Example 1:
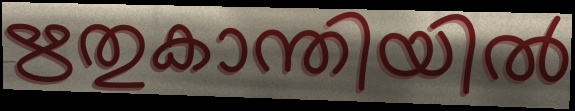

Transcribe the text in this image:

ഋതുകാന്തിയിൽ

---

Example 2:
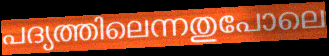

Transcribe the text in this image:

പദ്യത്തിലെന്നതുപോലെ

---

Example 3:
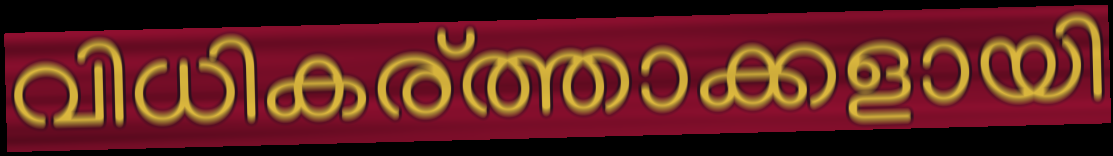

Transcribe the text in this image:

വിധികര്ത്താക്കളായി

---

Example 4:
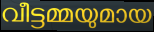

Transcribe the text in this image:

വീട്ടമ്മയുമായ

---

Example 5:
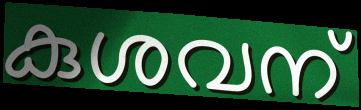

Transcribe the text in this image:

കുശവന്